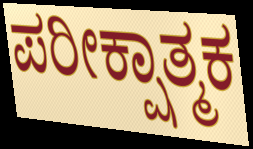
ಪರೀಕ್ಷಾತ್ಮಕ